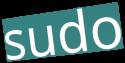
sudo